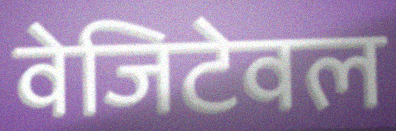
वेजिटेवल